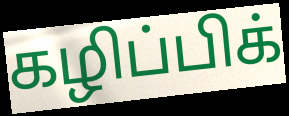
கழிப்பிக்